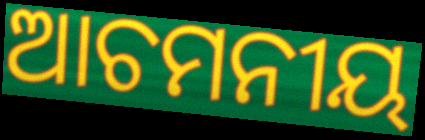
ଆଚମନୀୟ